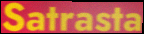
Satrasta